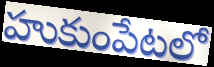
హుకుంపేటలో